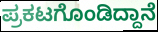
ಪ್ರಕಟಗೊಂಡಿದ್ದಾನೆ